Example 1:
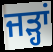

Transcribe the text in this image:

ਜੜ੍ਹਾਂ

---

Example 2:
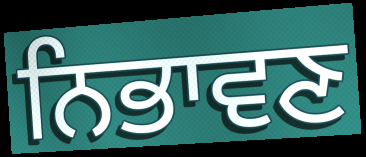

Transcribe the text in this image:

ਨਿਭਾਵਣ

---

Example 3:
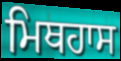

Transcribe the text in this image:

ਮਿਥਹਾਸ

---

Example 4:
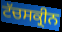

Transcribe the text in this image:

ਟੱਚਸਕ੍ਰੀਨ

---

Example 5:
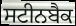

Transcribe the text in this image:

ਸਟੀਨਬੈਕ